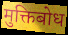
मुक्तिबोध